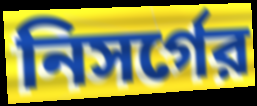
নিসর্গের